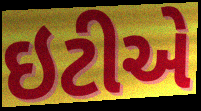
ઇટીએ